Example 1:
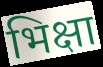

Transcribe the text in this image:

भिक्षा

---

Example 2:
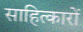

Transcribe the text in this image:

साहित्कारों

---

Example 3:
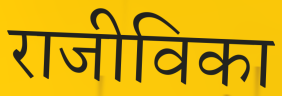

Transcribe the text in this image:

राजीविका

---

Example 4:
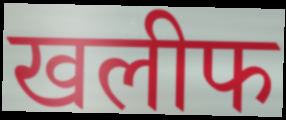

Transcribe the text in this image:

खलीफ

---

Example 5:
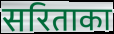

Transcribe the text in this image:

सरिताका